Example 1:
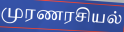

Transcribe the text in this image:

முரணரசியல்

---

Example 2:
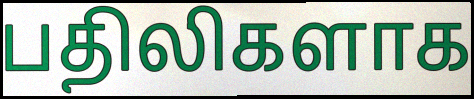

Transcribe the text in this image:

பதிலிகளாக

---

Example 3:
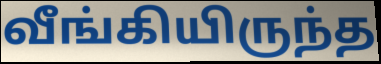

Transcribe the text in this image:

வீங்கியிருந்த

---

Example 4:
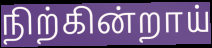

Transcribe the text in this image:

நிற்கின்றாய்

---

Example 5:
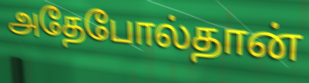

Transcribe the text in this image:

அதேபோல்தான்